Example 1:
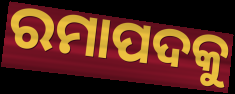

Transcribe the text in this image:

ରମାପଦକୁ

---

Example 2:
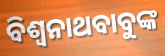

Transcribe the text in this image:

ବିଶ୍ୱନାଥବାବୁଙ୍କ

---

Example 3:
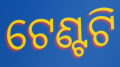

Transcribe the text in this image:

ଟେଣ୍ଟଟି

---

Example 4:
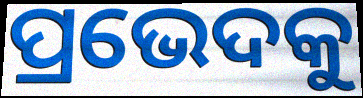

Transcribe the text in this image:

ପ୍ରଭେଦକୁ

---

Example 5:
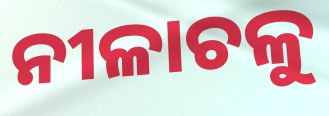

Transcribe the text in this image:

ନୀଳାଚଳୁ